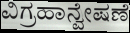
ವಿಗ್ರಹಾನ್ವೇಷಣೆ